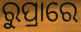
ରୁପ୍ରାରେ